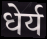
धेर्य